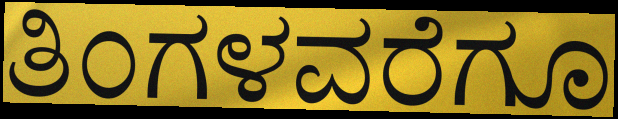
ತಿಂಗಳವರೆಗೂ